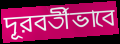
দূরবর্তীভাবে